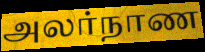
அலர்நாண